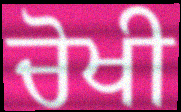
ਚੋਖੀ